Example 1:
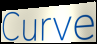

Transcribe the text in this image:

Curve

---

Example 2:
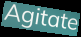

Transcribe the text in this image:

Agitate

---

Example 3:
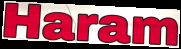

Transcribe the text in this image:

Haram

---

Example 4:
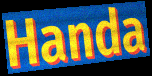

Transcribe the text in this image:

Handa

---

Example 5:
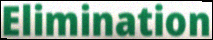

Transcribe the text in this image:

Elimination